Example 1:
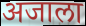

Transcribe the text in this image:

अजाला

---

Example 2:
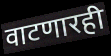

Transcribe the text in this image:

वाटणारही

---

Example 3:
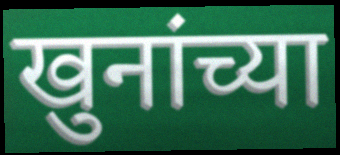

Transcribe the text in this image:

खुनांच्या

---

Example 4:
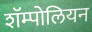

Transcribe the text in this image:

शॅम्पोलियन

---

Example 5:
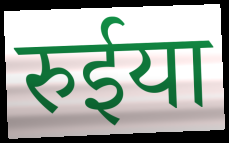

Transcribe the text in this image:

रुईया